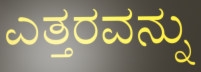
ಎತ್ತರವನ್ನು